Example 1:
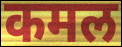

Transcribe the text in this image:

कमल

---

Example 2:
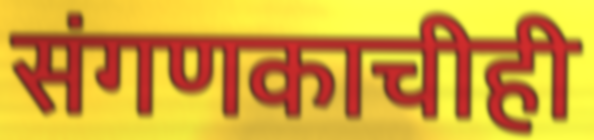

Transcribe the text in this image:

संगणकाचीही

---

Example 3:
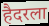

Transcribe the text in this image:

हैदरला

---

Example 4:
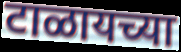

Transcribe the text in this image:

टाळायच्या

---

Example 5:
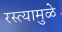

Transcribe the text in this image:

रस्त्यामुळे